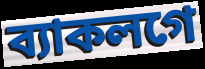
ব্যাকলগে